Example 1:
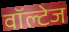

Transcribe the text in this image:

वॉल्टेज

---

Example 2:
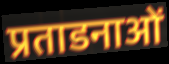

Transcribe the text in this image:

प्रताडनाओं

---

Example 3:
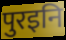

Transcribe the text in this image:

पुरइनि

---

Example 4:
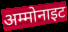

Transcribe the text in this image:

अम्मोनाइट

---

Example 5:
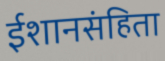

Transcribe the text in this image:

ईशानसंहिता